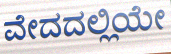
ವೇದದಲ್ಲಿಯೇ